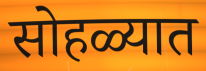
सोहळ्यात